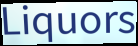
Liquors